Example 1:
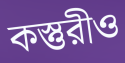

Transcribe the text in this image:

কস্তুরীও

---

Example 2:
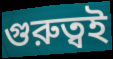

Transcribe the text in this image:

গুরুত্বই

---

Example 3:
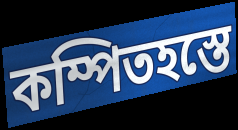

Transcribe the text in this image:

কম্পিতহস্তে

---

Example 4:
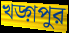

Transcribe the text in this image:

খড়্গপুর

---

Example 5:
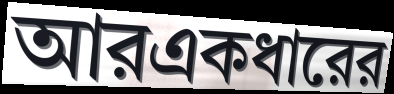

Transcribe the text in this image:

আরএকধারের